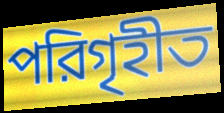
পরিগৃহীত